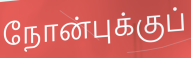
நோன்புக்குப்